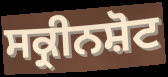
ਸਕ੍ਰੀਨਸ਼ੋਟ